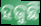
ହଜୁଛି